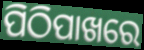
ପିଠିପାଖରେ